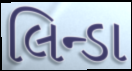
લિન્ડા